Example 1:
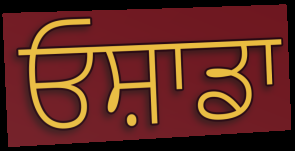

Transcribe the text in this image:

ਓਸ਼ਾਡਾ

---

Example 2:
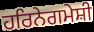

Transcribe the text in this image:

ਹਰਿਨੇਗਮੇਸ਼ੀ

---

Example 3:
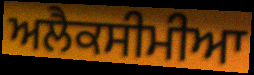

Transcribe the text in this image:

ਅਲੈਕਸੀਮੀਆ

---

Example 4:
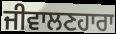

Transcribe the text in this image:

ਜੀਵਾਲਣਹਾਰਾ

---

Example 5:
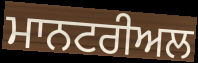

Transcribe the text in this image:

ਮਾਨਟਰੀਅਲ